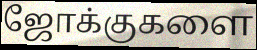
ஜோக்குகளை